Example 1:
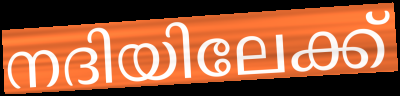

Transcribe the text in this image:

നദിയിലേക്ക്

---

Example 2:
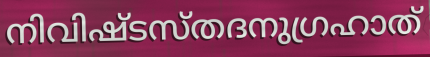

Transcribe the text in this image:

നിവിഷ്ടസ്തദനുഗ്രഹാത്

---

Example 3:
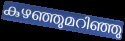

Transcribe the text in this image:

കുഴഞ്ഞുമറിഞ്ഞു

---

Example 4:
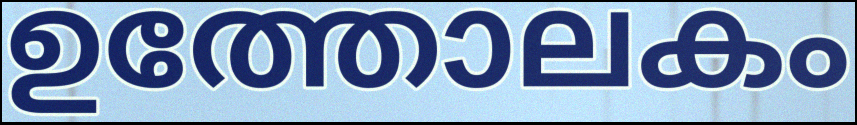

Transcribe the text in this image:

ഉത്തോലകം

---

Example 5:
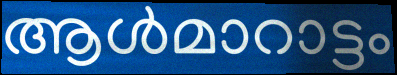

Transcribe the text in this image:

ആൾമാറാട്ടം